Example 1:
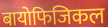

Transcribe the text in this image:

बायोफिजिकल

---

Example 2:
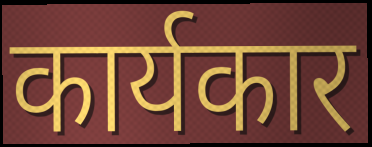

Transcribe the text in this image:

कार्यकार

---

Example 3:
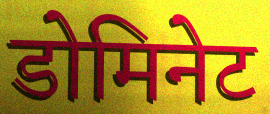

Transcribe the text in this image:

डोमिनेट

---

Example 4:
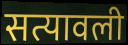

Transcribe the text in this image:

सत्यावली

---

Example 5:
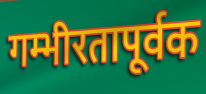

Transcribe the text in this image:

गम्भीरतापूर्वक